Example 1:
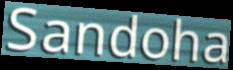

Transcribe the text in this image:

Sandoha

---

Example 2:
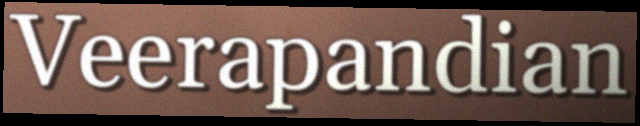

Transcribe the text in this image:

Veerapandian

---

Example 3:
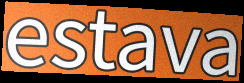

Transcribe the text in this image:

estava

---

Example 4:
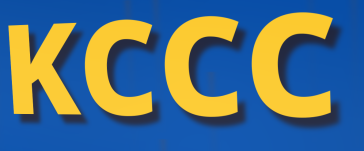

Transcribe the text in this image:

KCCC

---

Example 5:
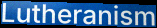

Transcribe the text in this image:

Lutheranism